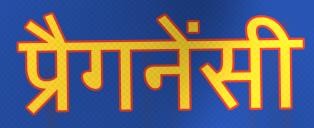
प्रैगनेंसी